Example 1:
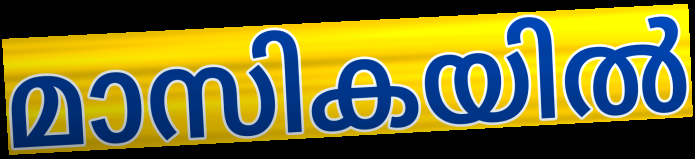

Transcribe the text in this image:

മാസികയിൽ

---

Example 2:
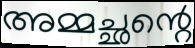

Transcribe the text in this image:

അമ്മച്ഛന്റെ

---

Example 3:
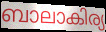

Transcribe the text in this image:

ബാലാകിര്യ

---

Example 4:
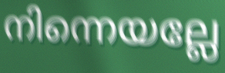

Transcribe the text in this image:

നിന്നെയല്ലേ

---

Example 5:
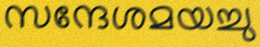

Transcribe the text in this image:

സന്ദേശമയച്ചു